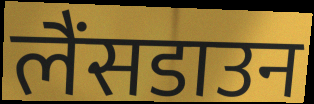
लैंसडाउन